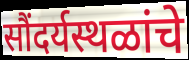
सौंदर्यस्थळांचे